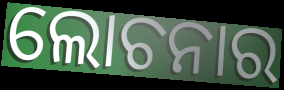
ଲୋଚନାର